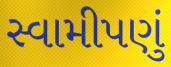
સ્વામીપણું